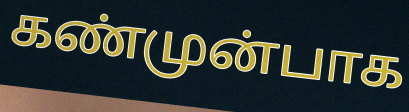
கண்முன்பாக